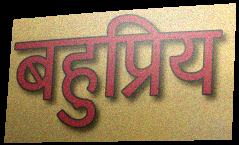
बहुप्रिय